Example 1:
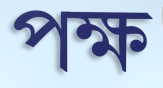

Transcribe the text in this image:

পক্ষ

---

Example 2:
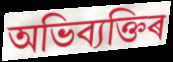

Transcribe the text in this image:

অভিব্যক্তিৰ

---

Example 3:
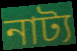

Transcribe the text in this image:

নাট্য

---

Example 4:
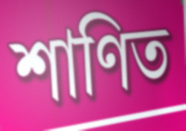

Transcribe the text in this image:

শাণিত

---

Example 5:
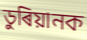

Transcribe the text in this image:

ডুৰিয়ানক